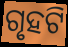
ଗୃହଟି